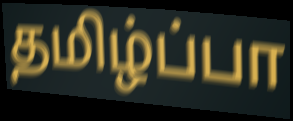
தமிழ்ப்பா